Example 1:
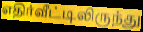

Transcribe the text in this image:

எதிர்வீட்டிலிருந்து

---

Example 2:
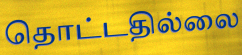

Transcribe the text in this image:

தொட்டதில்லை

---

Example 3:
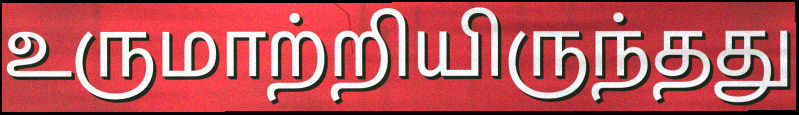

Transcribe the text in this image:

உருமாற்றியிருந்தது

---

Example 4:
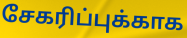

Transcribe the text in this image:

சேகரிப்புக்காக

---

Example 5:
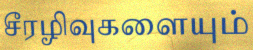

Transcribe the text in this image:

சீரழிவுகளையும்